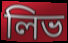
লিভ